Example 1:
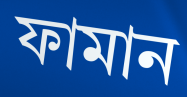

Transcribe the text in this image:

ফামান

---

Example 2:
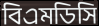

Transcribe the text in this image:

বিএমডিসি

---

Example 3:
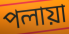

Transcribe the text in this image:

পলায়া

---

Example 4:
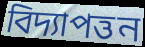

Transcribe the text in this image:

বিদ্যাপত্তন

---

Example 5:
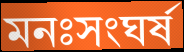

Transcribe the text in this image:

মনঃসংঘর্ষ